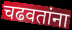
चढवतांना